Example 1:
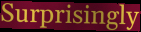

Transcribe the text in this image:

Surprisingly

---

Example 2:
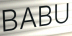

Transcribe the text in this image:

BABU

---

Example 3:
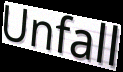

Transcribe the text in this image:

Unfall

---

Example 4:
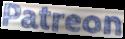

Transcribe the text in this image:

Patreon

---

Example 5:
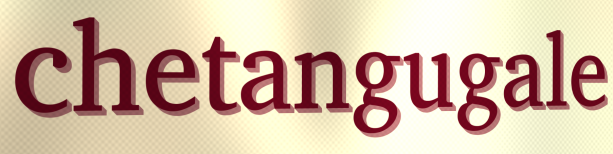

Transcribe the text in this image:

chetangugale